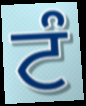
ਟੰ